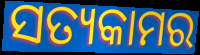
ସତ୍ୟକାମର